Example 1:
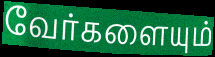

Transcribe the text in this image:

வேர்களையும்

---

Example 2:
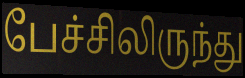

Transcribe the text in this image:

பேச்சிலிருந்து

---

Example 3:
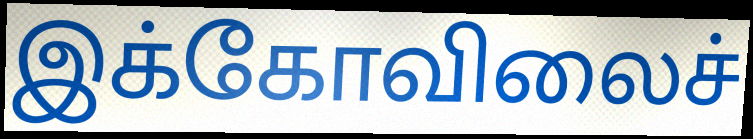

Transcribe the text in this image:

இக்கோவிலைச்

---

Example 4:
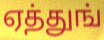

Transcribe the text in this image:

ஏத்துங்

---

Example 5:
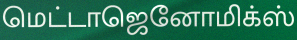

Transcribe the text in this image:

மெட்டாஜெனோமிக்ஸ்